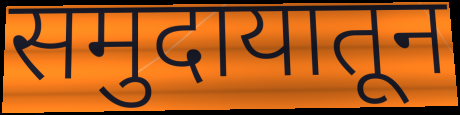
समुदायातून